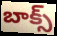
బాక్స్